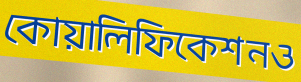
কোয়ালিফিকেশনও